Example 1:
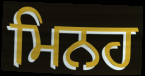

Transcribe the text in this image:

ਮਿਨਹ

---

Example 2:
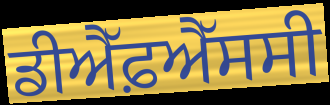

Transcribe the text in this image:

ਡੀਐੱਫ਼ਐੱਸਸੀ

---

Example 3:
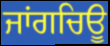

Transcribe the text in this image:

ਜਾਂਗਚਿਊ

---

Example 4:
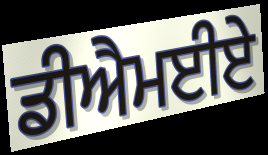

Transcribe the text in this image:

ਡੀਐਮਈਏ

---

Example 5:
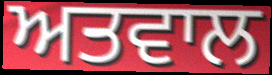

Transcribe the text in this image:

ਅਤਵਾਲ